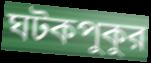
ঘটকপুকুর